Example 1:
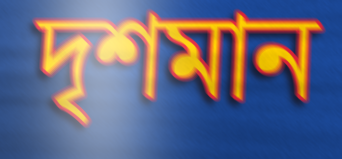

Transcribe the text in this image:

দৃশমান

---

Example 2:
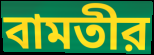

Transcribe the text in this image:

বামতীর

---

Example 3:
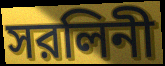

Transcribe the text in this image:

সরলিনী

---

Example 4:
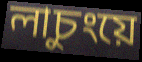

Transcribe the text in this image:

লাচুংয়ে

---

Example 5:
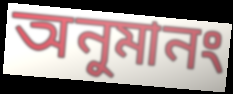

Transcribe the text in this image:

অনুমানং